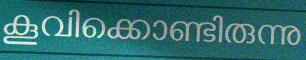
കൂവിക്കൊണ്ടിരുന്നു